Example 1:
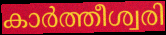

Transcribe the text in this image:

കാർത്തീശ്വരി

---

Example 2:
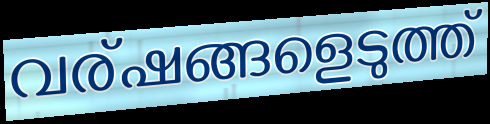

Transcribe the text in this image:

വര്ഷങ്ങളെടുത്ത്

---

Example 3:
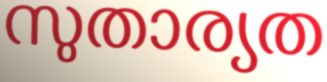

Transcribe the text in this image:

സുതാര്യത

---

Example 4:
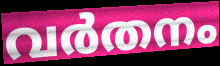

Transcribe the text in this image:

വർതനം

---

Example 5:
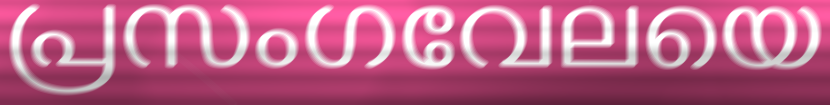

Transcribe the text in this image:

പ്രസംഗവേലയെ